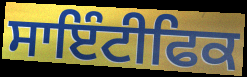
ਸਾਇੰਟੀਫਿਕ